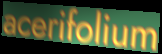
acerifolium